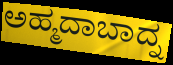
ಅಹ್ಮದಾಬಾದ್ನ